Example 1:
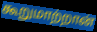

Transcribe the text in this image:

கூறுமாற்றான்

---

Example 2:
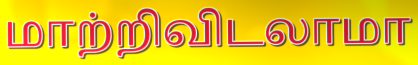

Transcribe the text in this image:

மாற்றிவிடலாமா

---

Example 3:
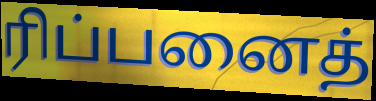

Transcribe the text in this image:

ரிப்பனைத்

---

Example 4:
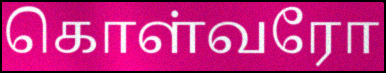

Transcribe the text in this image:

கொள்வரோ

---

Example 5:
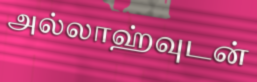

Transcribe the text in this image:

அல்லாஹ்வுடன்